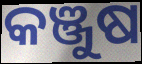
କଞ୍ଜୁଷ